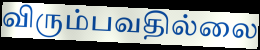
விரும்பவதில்லை